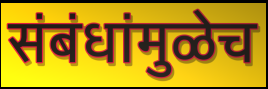
संबंधांमुळेच